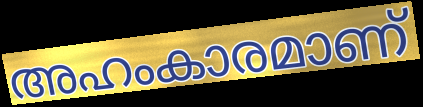
അഹംകാരമാണ്